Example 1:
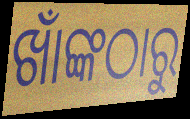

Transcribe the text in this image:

ଖାଁଙ୍କଠାରୁ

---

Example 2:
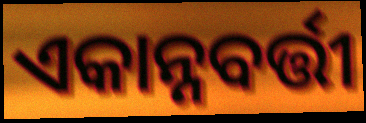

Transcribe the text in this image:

ଏକାନ୍ନବର୍ତ୍ତୀ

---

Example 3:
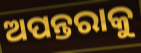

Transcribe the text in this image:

ଅପନ୍ତରାକୁ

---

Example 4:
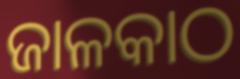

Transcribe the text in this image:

ଜାଳକାଠ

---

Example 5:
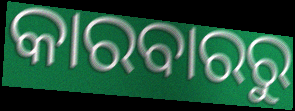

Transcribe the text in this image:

କାରବାରରୁ